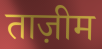
ताज़ीम